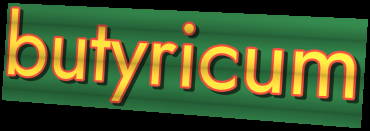
butyricum